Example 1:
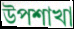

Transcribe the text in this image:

উপশাখা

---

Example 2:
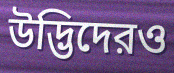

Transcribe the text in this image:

উদ্ভিদেরও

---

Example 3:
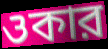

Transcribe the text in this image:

ওকার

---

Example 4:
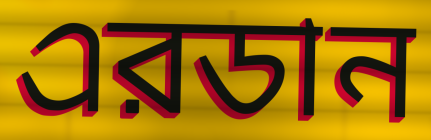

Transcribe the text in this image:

এরডান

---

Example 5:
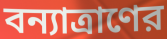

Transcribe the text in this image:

বন্যাত্রাণের